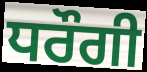
ਧਰੌਗੀ